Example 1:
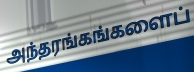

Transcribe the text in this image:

அந்தரங்கங்களைப்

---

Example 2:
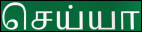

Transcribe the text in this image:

செய்யா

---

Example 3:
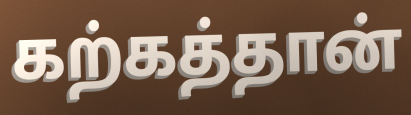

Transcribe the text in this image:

கற்கத்தான்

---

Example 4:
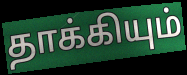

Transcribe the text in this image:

தாக்கியும்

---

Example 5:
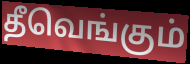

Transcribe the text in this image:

தீவெங்கும்